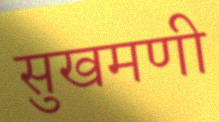
सुखमणी